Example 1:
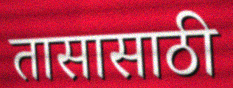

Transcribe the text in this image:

तासासाठी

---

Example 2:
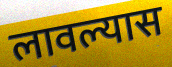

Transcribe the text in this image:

लावल्यास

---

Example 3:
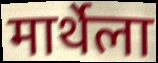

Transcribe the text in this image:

मार्थेला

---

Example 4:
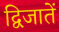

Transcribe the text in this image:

द्विजातें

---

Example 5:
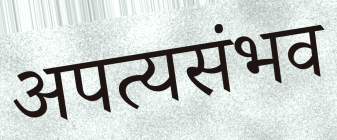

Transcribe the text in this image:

अपत्यसंभव